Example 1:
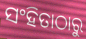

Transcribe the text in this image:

ସଂହିତାଠାରୁ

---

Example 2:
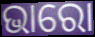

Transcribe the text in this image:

ଭାରୋ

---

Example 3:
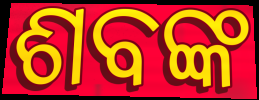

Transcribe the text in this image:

ଶବଙ୍କ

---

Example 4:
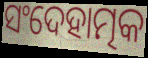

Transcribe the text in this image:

ସଂଦେହାତ୍ମକ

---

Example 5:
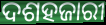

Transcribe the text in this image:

ଦଶହଜାରୀ